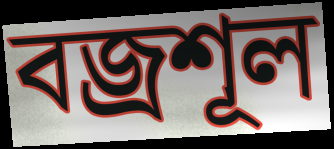
বজ্রশূল